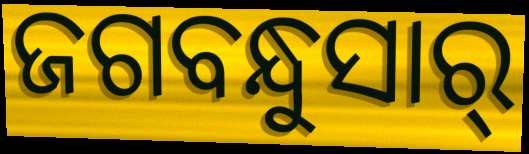
ଜଗବନ୍ଧୁସାର୍